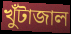
খুঁটাজাল